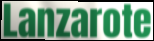
Lanzarote